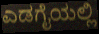
ಎಡಗೈಯಲ್ಲಿ